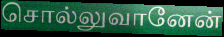
சொல்லுவானேன்